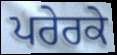
ਪਰੇਰਕੇ